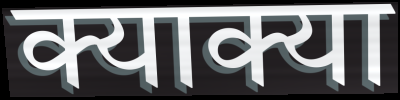
क्याक्या